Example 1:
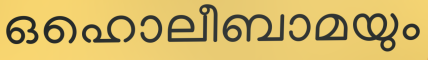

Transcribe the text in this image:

ഒഹൊലീബാമയും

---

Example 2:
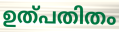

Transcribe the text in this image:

ഉത്പതിതം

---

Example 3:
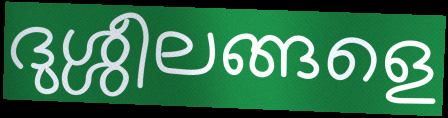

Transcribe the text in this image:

ദുശ്ശീലങ്ങളെ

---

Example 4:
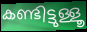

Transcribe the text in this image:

കണ്ടിട്ടുള്ളൂ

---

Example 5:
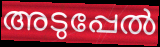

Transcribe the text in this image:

അടുപ്പേൽ